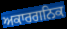
ਅਕਾਰਗਨਿਕ